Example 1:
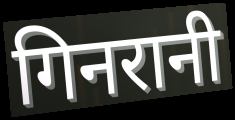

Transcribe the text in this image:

गिनरानी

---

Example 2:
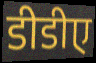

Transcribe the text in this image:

डीडीए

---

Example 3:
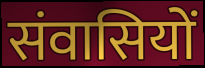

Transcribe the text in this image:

संवासियों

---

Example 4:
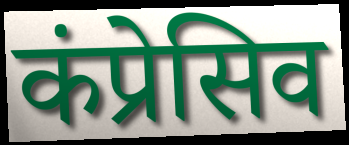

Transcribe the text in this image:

कंप्रेसिव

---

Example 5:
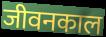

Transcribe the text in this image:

जीवनकाल